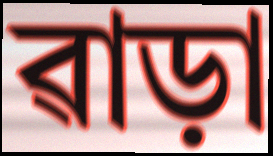
ৱাড়া